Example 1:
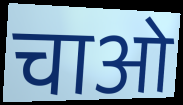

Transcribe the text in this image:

चाओ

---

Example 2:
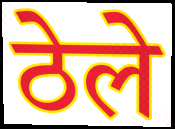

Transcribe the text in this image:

ठेले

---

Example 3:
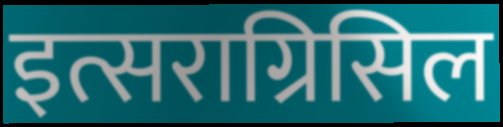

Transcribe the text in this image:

इत्सराग्रिसिल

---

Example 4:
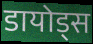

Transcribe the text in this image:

डायोड्स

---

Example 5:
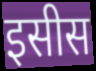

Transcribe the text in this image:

इसीस